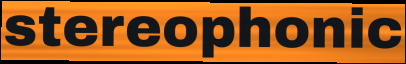
stereophonic